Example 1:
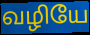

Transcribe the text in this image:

வழியே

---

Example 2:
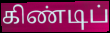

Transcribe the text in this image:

கிண்டிப்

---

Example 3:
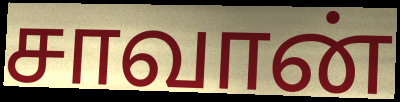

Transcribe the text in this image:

சாவான்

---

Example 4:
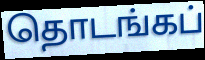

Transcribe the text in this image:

தொடங்கப்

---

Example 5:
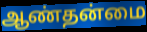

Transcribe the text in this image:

ஆண்தன்மை